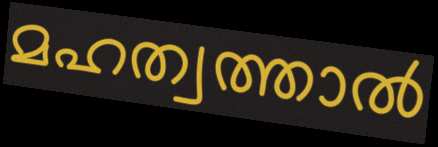
മഹത്വത്താൽ